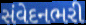
સંવેદનભરી